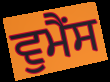
ਵੁਮੈਂਸ